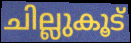
ചില്ലുകൂട്